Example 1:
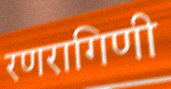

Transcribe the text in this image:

रणरागिणी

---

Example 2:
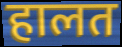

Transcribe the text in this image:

हालत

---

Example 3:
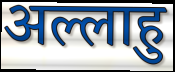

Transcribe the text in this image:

अल्लाहु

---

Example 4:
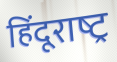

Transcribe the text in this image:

हिंदूराष्ट्र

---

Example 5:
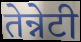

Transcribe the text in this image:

तेन्नेटी